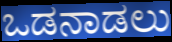
ಒಡನಾಡಲು